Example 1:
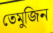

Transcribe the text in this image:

তেমুজিন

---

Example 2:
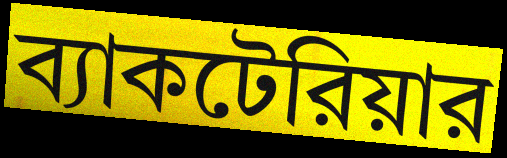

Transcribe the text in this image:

ব্যাকটেরিয়ার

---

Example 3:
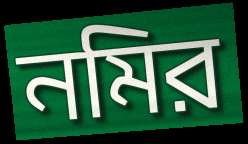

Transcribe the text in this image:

নমির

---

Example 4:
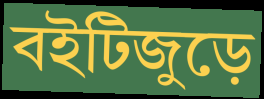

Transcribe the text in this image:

বইটিজুড়ে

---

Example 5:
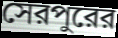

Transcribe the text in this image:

সেরপুরের